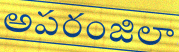
అపరంజిలా